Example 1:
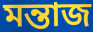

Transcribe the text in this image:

মন্তাজ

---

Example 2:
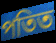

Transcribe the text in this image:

পতিত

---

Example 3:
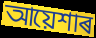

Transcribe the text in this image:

আয়েশাৰ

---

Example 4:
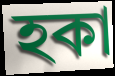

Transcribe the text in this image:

হকা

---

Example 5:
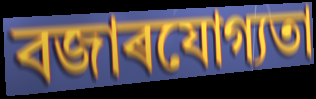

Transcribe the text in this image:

বজাৰযোগ্যতা